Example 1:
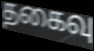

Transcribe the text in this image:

தகைவு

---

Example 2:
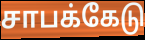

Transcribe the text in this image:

சாபக்கேடு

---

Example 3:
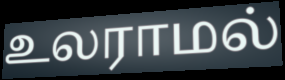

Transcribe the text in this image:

உலராமல்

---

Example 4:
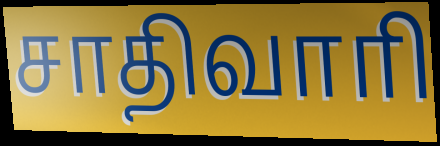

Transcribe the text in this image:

சாதிவாரி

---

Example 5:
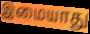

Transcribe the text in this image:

இமையாது